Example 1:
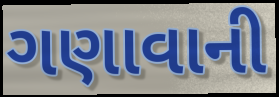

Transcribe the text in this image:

ગણાવાની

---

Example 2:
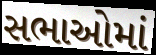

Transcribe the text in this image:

સભાઓમાં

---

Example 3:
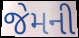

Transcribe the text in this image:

જેમની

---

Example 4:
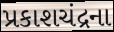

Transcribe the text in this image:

પ્રકાશચંદ્રના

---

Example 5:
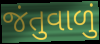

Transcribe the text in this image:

જંતુવાળું